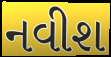
નવીશ